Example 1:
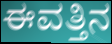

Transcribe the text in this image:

ಈವತ್ತಿನ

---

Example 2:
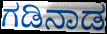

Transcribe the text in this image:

ಗಡಿನಾಡ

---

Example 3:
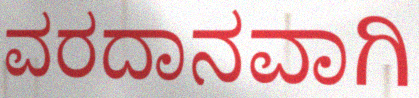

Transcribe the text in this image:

ವರದಾನವಾಗಿ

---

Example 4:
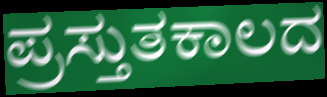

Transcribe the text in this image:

ಪ್ರಸ್ತುತಕಾಲದ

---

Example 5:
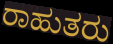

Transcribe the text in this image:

ರಾಹುತರು